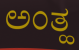
ಅಂತ್ಹ